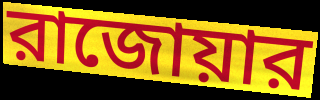
রাজোয়ার